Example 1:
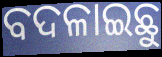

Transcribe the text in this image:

ବଦଳାଇଛୁ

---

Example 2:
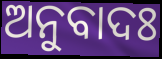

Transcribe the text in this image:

ଅନୁବାଦଃ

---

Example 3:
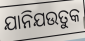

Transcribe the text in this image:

ଯାନିଯଉତୁକ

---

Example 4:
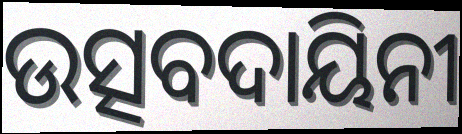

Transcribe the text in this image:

ଉତ୍ସବଦାୟିନୀ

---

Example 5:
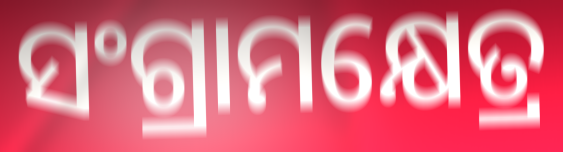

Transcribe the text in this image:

ସଂଗ୍ରାମକ୍ଷେତ୍ର